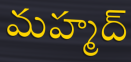
మహ్మద్